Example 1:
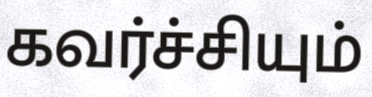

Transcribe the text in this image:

கவர்ச்சியும்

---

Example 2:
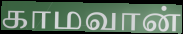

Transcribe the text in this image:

காமவான்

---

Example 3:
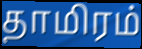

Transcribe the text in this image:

தாமிரம்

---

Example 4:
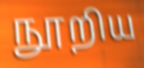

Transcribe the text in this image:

நூறிய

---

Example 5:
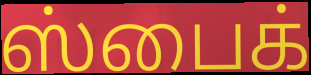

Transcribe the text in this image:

ஸ்பைக்